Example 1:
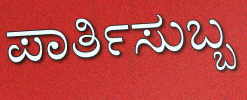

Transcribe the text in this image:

ಪಾರ್ತಿಸುಬ್ಬ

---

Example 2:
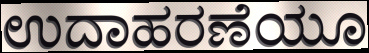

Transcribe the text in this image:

ಉದಾಹರಣೆಯೂ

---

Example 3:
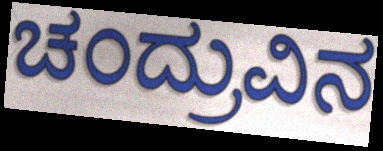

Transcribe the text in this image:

ಚಂದ್ರುವಿನ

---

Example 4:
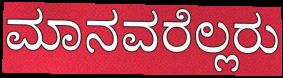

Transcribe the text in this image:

ಮಾನವರೆಲ್ಲರು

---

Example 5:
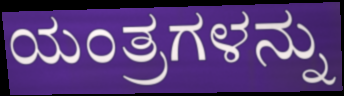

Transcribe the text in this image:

ಯಂತ್ರಗಳನ್ನು